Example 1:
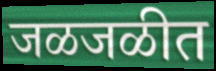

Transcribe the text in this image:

जळजळीत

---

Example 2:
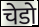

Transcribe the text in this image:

चेडो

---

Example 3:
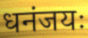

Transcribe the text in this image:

धनंजयः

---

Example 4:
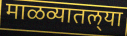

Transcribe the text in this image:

माळव्यातल्या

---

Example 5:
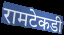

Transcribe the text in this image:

रामटेकडी